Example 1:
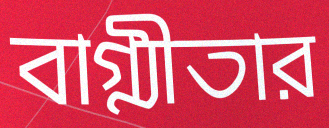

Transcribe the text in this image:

বাগ্মীতার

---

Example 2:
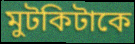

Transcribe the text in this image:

মুটকিটাকে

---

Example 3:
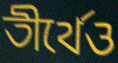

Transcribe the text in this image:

তীর্থেও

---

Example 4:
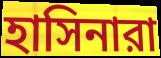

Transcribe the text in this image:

হাসিনারা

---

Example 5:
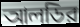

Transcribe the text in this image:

আলডির